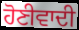
ਹੋਣੀਵਾਦੀ